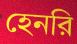
হেনরি